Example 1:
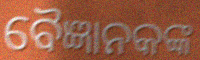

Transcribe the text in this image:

ବୈଜ୍ଞାନକଙ୍କ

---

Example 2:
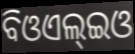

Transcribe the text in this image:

ବିଓଏଲ୍ଇଓ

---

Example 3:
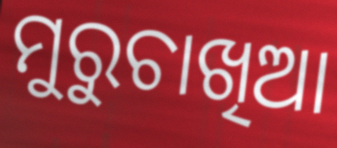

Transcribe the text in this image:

ମୁରୁଚାଖିଆ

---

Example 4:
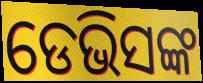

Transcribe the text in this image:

ଡେଭିସଙ୍କ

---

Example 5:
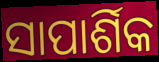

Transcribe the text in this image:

ସାପାର୍ଶିକ